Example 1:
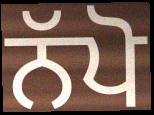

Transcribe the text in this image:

ਨੱਪੋ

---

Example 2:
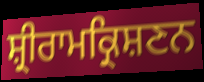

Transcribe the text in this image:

ਸ਼੍ਰੀਰਾਮਕ੍ਰਿਸ਼ਣਨ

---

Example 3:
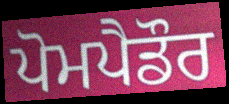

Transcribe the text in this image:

ਪੋਮਪੈਡੌਰ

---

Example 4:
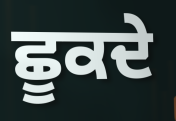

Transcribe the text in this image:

ਛੂਕਦੇ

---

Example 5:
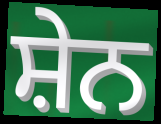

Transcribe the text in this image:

ਸ਼ੇਨ